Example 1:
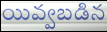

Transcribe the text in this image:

యివ్వబడిన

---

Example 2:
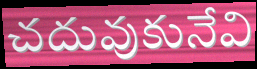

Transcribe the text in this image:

చదువుకునేవి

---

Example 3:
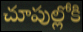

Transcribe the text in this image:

చూపుల్లోకి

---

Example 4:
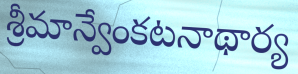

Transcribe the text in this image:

శ్రీమాన్వేంకటనాథార్య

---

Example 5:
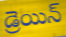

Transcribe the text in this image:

డ్రెయిన్